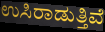
ಉಸಿರಾಡುತ್ತಿವೆ